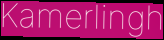
Kamerlingh